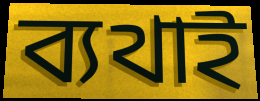
ব্যথাই